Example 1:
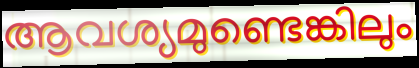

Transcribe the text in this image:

ആവശ്യമുണ്ടെങ്കിലും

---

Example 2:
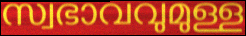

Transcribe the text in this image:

സ്വഭാവവുമുള്ള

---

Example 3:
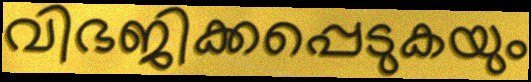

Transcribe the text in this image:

വിഭജിക്കപ്പെടുകയും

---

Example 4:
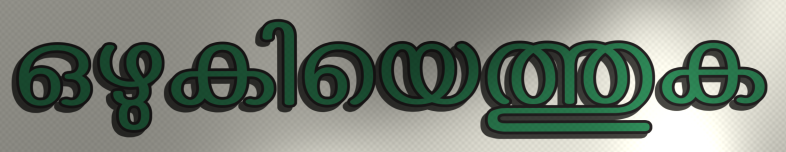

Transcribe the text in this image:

ഒഴുകിയെത്തുക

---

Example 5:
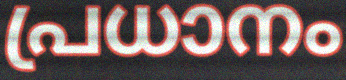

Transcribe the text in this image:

പ്രധാനം